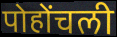
पोहोंचली